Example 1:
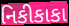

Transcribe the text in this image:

નિકીકાકા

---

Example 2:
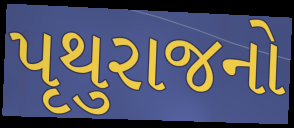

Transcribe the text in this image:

પૃથુરાજનો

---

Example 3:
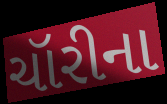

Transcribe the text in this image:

ચૉરીના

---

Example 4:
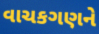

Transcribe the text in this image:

વાચકગણને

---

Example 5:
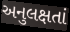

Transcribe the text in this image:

અનુલક્ષતાં